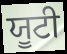
ਯੂਟੀ